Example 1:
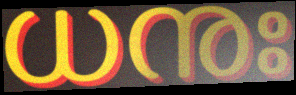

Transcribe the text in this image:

ധനുഃ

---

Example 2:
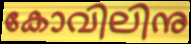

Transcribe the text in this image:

കോവിലിനു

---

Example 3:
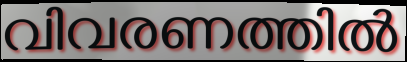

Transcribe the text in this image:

വിവരണത്തിൽ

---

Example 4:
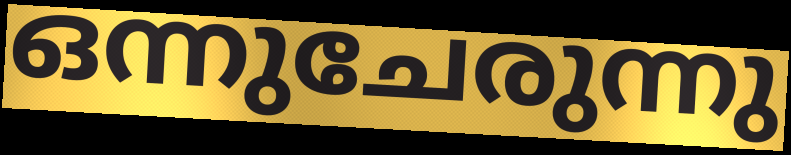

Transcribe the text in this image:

ഒന്നുചേരുന്നു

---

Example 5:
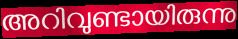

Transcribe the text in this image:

അറിവുണ്ടായിരുന്നു